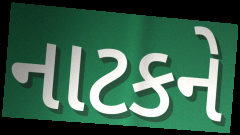
નાટકને